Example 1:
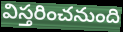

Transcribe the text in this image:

విస్తరించనుంది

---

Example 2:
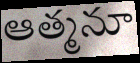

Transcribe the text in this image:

ఆత్మనూ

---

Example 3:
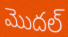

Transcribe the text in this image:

మొదల్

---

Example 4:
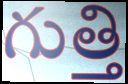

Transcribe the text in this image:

గుత్తి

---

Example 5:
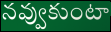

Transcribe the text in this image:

నవ్వుకుంటా